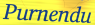
Purnendu